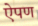
ऐपण